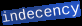
indecency